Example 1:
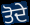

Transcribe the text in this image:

ਤੋਦੇ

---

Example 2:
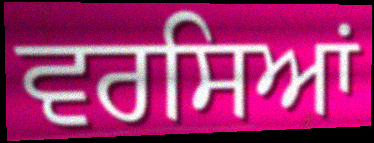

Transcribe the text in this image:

ਵਰਸਿਆਂ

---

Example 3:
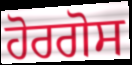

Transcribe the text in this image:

ਹੋਰਗੋਸ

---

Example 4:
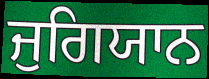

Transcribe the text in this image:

ਜੁਗਿਯਾਨ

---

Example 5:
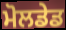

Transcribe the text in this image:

ਮੋਲਡੇਡ